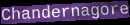
Chandernagore